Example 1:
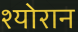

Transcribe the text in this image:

श्योरान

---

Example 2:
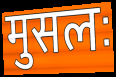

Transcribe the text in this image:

मुसलः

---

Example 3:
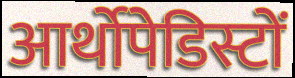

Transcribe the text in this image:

आर्थोपेडिस्टों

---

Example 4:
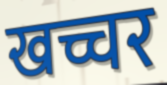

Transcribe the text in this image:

खच्चर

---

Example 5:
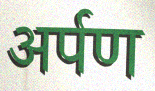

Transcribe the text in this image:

अर्पण